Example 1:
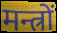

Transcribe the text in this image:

मन्त्रों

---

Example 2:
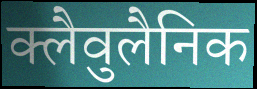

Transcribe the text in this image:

क्लैवुलैनिक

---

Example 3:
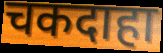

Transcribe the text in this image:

चकदाहा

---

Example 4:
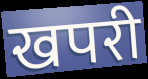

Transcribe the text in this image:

खपरी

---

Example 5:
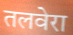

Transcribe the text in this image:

तलवेरा